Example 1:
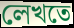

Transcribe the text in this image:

লেখতে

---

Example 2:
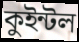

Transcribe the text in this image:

কুইন্টল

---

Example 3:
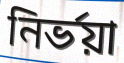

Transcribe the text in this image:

নির্ভয়া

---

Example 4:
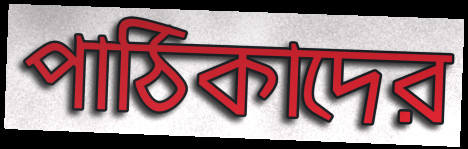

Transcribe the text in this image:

পাঠিকাদের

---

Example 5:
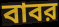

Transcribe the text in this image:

বাবর